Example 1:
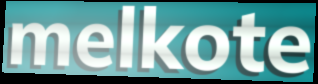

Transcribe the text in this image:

melkote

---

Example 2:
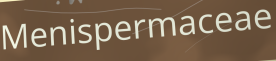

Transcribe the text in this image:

Menispermaceae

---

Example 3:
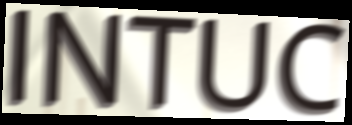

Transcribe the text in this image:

INTUC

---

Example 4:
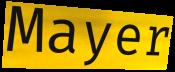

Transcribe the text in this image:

Mayer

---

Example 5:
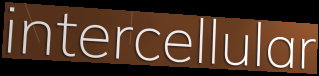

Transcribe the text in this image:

intercellular